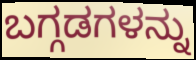
ಬಗ್ಗಡಗಳನ್ನು